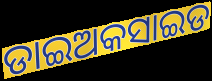
ଡାଇଅକସାଇଡ